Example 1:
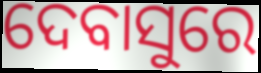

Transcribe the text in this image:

ଦେବାସୁରେ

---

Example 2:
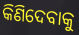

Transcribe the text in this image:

କିଣିଦେବାକୁ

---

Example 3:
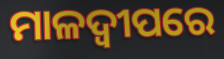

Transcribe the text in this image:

ମାଳଦ୍ବୀପରେ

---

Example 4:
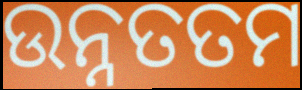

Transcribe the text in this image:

ଉନ୍ନତତମ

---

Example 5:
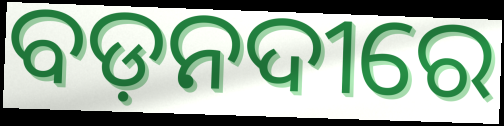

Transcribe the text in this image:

ବଡ଼ନଦୀରେ